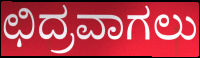
ಛಿದ್ರವಾಗಲು